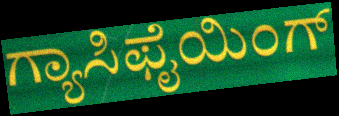
ಗ್ಯಾಸಿಫೈಯಿಂಗ್